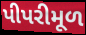
પીપરીમૂળ